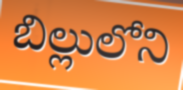
బిల్లులోని